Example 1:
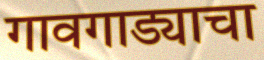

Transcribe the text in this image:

गावगाड्याचा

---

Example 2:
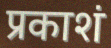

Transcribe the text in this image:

प्रकाशं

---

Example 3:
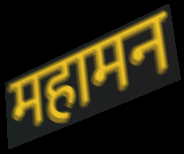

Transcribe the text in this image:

महामन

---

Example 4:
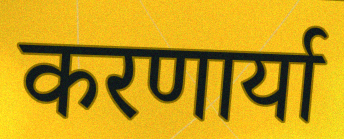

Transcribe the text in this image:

करणार्या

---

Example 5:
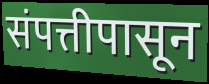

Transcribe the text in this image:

संपत्तीपासून